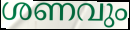
ശണവും